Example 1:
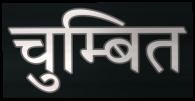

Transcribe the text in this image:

चुम्बित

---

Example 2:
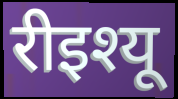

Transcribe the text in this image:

रीइश्यू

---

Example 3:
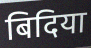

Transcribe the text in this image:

बिदिया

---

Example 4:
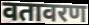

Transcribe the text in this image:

वतावरण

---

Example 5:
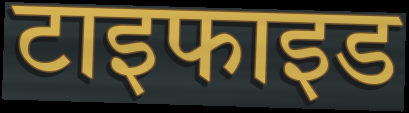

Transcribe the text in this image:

टाइफाइड